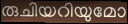
രുചിയറിയുമോ